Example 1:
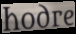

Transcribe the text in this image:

hodre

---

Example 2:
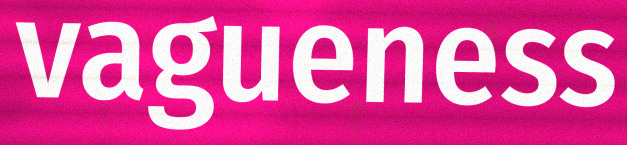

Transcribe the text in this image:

vagueness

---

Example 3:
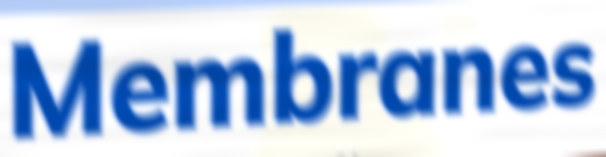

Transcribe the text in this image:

Membranes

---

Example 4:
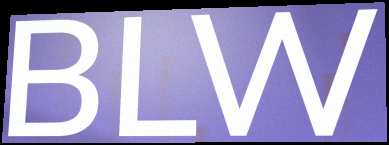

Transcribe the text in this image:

BLW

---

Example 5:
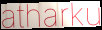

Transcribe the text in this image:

atharku